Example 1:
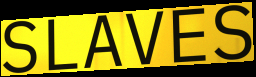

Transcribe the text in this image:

SLAVES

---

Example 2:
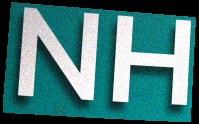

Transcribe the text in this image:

NH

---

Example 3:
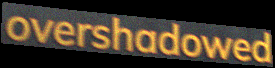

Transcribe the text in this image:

overshadowed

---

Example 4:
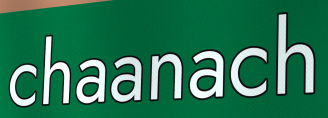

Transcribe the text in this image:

chaanach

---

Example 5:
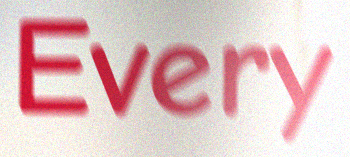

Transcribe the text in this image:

Every